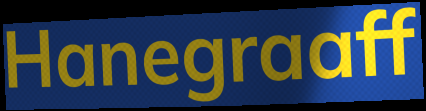
Hanegraaff